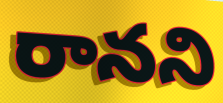
రానని